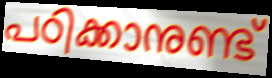
പഠിക്കാനുണ്ട്